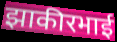
झाकीरभाई